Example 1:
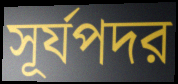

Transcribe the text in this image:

সূর্যপদর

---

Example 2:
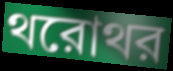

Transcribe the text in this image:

থরোথর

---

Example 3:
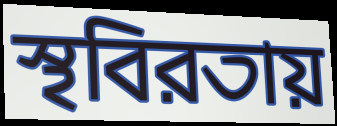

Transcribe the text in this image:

স্থবিরতায়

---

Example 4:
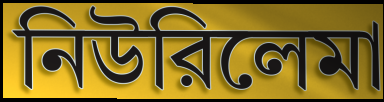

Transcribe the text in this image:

নিউরিলেমা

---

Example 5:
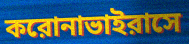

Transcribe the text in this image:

করোনাভাইরাসে